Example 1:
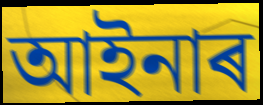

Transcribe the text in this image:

আইনাৰ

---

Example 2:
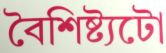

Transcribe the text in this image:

বৈশিষ্ট্যটো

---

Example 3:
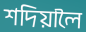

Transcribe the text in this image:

শদিয়ালৈ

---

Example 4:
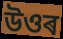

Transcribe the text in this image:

উওৰ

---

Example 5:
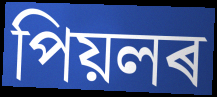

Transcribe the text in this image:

পিয়লৰ